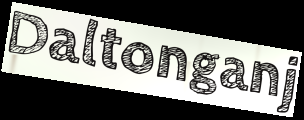
Daltonganj